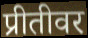
प्रीतीवर